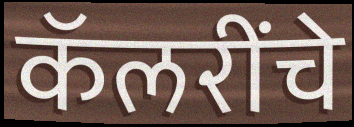
कॅलरींचे